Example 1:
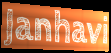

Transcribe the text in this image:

Janhavi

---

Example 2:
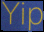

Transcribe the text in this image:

Yip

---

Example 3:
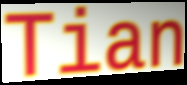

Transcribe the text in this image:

Tian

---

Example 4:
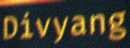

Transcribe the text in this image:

Divyang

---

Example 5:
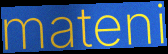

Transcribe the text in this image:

mateni